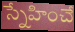
స్నేహించే